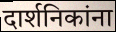
दार्शनिकांना